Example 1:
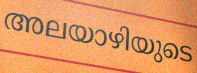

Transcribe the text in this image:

അലയാഴിയുടെ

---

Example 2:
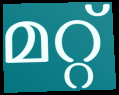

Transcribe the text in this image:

മറ്റ്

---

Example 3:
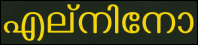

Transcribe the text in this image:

എല്നിനോ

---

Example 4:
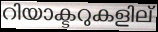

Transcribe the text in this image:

റിയാക്ടറുകളില്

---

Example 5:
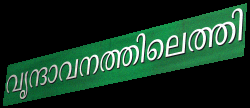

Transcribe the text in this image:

വൃന്ദാവനത്തിലെത്തി